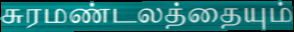
சுரமண்டலத்தையும்